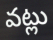
వట్లు